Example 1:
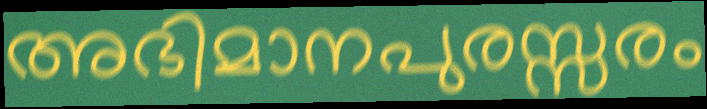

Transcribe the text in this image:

അഭിമാനപുരസ്സരം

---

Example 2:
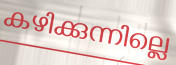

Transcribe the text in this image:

കഴിക്കുന്നില്ലെ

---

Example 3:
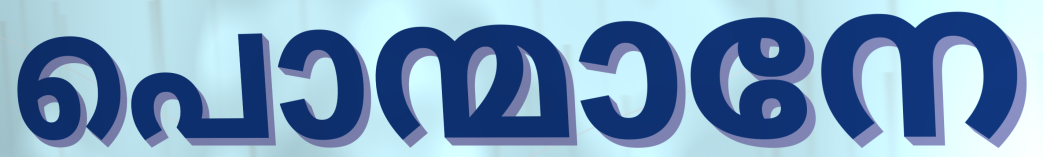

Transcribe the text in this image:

പൊന്മാനേ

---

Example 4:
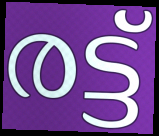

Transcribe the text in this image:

രട്ട്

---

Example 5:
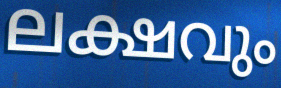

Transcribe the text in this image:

ലക്ഷവും